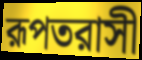
রূপতরাসী